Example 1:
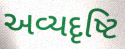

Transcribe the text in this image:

અવ્યદૃષ્ટિ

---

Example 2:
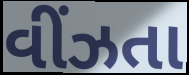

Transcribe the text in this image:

વીંઝતા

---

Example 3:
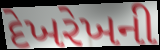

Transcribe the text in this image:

દેખરેખની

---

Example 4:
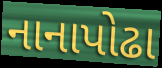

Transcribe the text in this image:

નાનાપોઢા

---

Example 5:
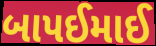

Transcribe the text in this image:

બાપઈમાઈ